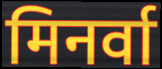
मिनर्वा